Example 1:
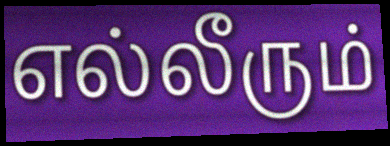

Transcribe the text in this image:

எல்லீரும்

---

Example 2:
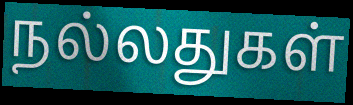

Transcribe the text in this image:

நல்லதுகள்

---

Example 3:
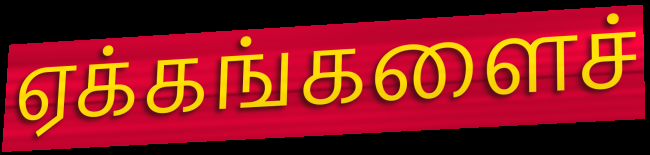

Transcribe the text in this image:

ஏக்கங்களைச்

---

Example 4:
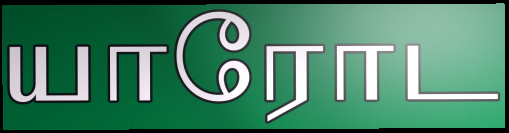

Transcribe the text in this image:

யாரோட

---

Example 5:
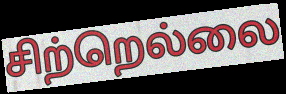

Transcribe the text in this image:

சிற்றெல்லை